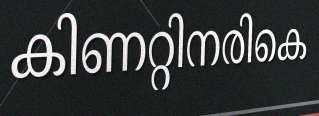
കിണറ്റിനരികെ